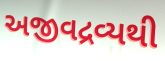
અજીવદ્રવ્યથી